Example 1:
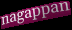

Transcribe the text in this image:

nagappan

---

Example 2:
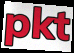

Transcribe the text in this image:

pkt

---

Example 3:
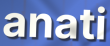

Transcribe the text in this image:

anati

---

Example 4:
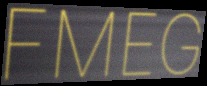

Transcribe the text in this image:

FMEG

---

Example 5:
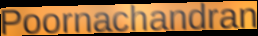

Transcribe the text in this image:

Poornachandran